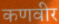
कणवीर